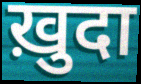
ख़ुदा